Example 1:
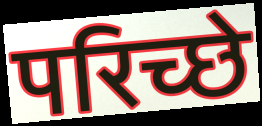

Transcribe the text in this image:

परिच्छे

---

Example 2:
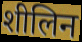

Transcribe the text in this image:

शीलिन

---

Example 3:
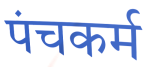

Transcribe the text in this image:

पंचकर्म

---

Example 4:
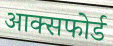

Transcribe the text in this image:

आक्सफोर्ड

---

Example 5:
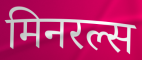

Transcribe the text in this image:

मिनरल्स